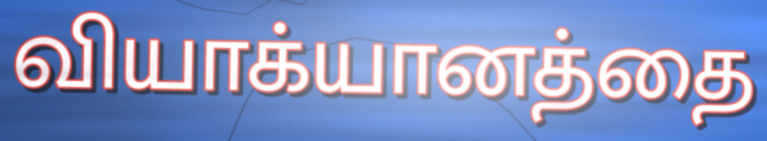
வியாக்யானத்தை